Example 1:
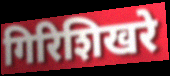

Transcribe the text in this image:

गिरिशिखरे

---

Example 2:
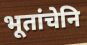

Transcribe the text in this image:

भूतांचेनि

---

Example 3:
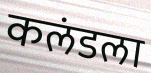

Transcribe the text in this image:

कलंडला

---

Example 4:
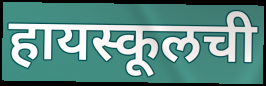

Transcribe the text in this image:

हायस्कूलची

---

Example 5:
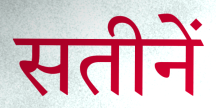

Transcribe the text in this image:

सतीनें